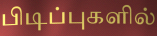
பிடிப்புகளில்